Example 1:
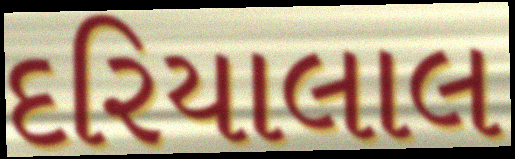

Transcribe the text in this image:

દરિયાલાલ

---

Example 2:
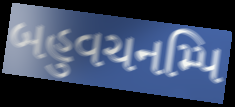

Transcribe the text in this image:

બહુવચનમ્પિ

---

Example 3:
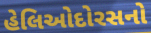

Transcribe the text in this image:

હેલિઓદોરસનો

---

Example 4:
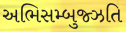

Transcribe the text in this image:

અભિસમ્બુજ્ઝતિ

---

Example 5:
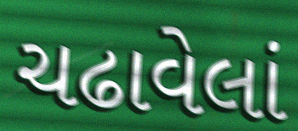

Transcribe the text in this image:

ચઢાવેલાં